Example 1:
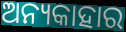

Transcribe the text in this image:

ଅନ୍ୟକାହାର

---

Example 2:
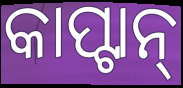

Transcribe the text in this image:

କାପ୍ଟାନ୍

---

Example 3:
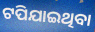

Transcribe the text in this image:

ଟପିଯାଇଥିବା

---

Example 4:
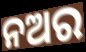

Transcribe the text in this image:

ନଅର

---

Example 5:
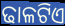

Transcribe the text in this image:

ଢାଳଟିଏ